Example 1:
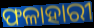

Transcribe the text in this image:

ଫଳାହାରୀ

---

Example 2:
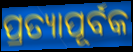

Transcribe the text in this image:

ପ୍ରତ୍ୟାପୂର୍ବକ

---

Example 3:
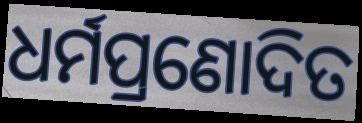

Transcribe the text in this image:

ଧର୍ମପ୍ରଣୋଦିତ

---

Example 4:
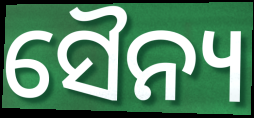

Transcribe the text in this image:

ସୈନ୍ୟ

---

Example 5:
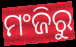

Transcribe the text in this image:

ମଂଜିରୁ